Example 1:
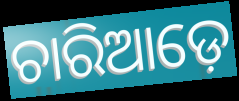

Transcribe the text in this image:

ଚାରିଆଡ଼େ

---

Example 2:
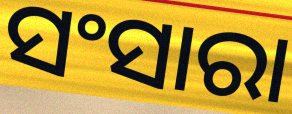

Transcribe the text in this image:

ସଂସାରା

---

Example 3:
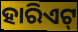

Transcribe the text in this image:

ହାରିଏଟ୍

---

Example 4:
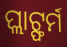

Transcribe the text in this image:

ପ୍ଲାଟ୍ଫର୍ମ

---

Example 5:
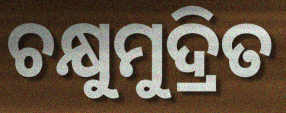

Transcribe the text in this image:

ଚକ୍ଷୁମୁଦ୍ରିତ